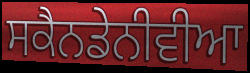
ਸਕੈਨਡੇਨੀਵੀਆ